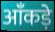
आँकड़े